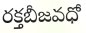
రక్తబీజవధో